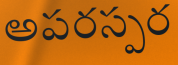
అపరస్పర